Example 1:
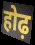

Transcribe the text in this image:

होढ़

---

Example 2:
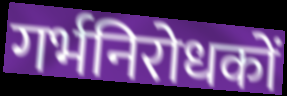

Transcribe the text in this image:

गर्भनिरोधकों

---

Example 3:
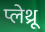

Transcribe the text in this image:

प्लेथ्रू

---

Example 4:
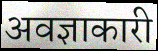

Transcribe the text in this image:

अवज्ञाकारी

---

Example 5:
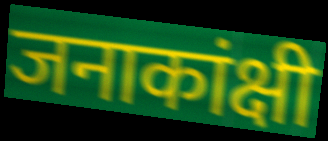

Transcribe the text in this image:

जनाकांक्षी